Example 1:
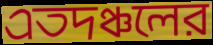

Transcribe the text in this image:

এতদঞ্চলের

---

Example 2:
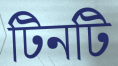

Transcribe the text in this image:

টিনটি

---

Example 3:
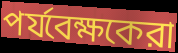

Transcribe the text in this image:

পর্যবেক্ষকেরা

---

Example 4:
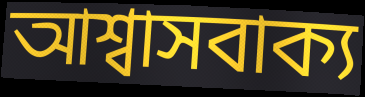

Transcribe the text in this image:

আশ্বাসবাক্য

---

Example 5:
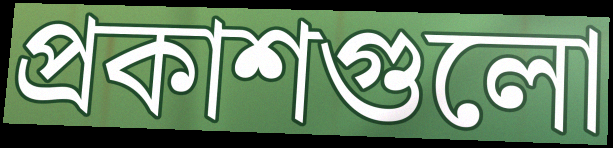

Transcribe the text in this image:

প্রকাশগুলো